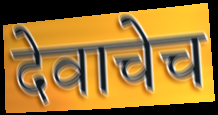
देवाचेच